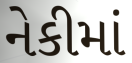
નેકીમાં